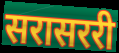
सरासररी